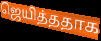
ஜெயித்ததாக